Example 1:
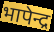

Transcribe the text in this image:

भापेन्द्र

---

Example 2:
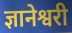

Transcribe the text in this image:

ज्ञानेश्वरी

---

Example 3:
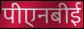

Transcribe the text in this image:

पीएनबीई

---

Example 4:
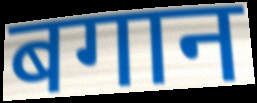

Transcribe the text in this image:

बगान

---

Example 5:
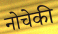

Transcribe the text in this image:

नोचेकी